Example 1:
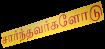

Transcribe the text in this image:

சார்ந்தவர்களோடு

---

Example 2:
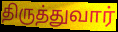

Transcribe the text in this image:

திருத்துவார்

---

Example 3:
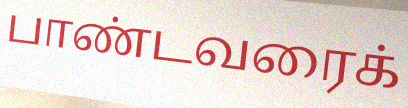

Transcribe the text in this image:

பாண்டவரைக்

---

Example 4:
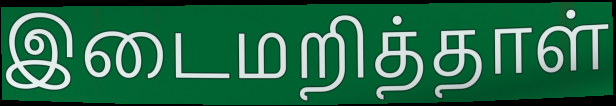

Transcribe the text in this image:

இடைமறித்தாள்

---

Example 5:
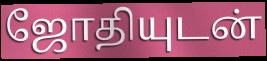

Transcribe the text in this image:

ஜோதியுடன்